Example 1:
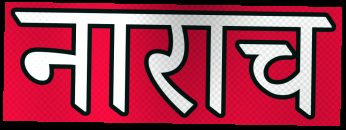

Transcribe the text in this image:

नाराच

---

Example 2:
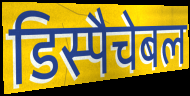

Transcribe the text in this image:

डिस्पैचेबल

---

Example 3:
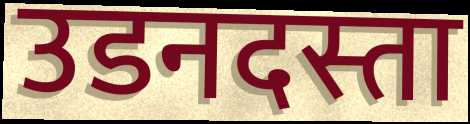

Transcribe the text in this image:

उडनदस्ता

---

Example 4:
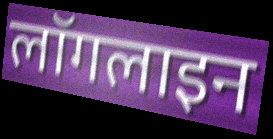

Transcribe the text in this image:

लॉगलाइन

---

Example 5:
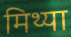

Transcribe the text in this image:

मिथ्‍या